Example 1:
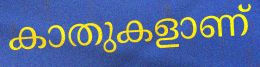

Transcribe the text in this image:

കാതുകളാണ്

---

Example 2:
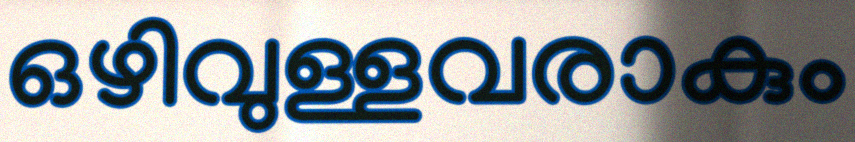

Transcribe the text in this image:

ഒഴിവുള്ളവരാകും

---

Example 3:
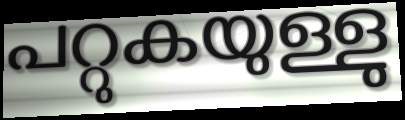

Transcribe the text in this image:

പറ്റുകയുള്ളു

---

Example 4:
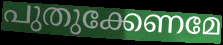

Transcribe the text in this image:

പുതുക്കേണമേ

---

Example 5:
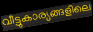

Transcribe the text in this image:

വീട്ടുകാര്യങ്ങളിലെ